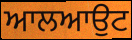
ਆਲਆਉਟ